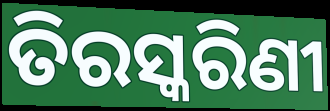
ତିରସ୍କରିଣୀ